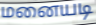
மனையடி